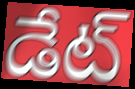
డేట్